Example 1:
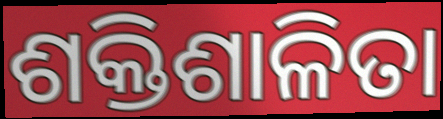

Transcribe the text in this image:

ଶକ୍ତିଶାଳିତା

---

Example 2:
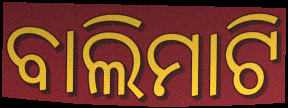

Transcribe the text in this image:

ବାଲିମାଟି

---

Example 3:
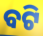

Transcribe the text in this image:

ବଟି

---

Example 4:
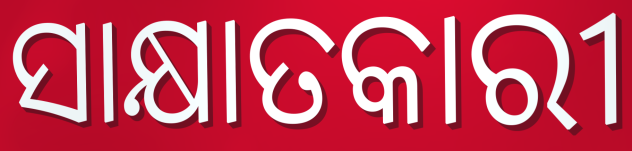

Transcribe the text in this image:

ସାକ୍ଷାତକାରୀ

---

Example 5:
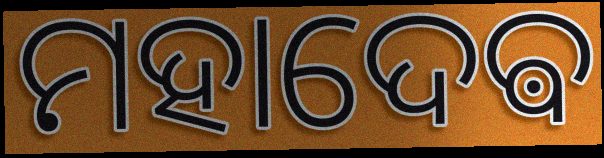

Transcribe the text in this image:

ମହାଦେଵ